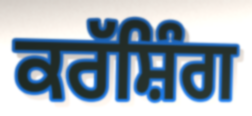
ਕਰੱਸ਼ਿੰਗ